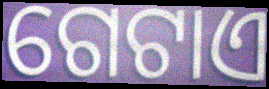
ଗେଟାଏ